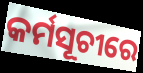
କର୍ମସୂଚୀରେ